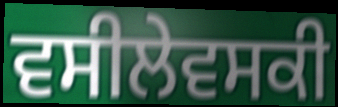
ਵਸੀਲੇਵਸਕੀ